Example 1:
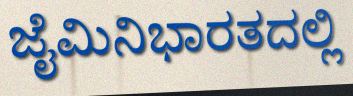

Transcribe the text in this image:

ಜೈಮಿನಿಭಾರತದಲ್ಲಿ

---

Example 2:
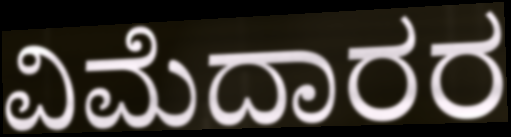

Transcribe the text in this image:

ವಿಮೆದಾರರ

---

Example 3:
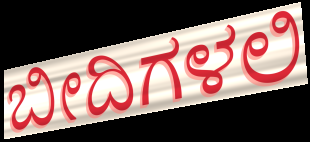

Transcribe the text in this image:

ಬೀದಿಗಳಲಿ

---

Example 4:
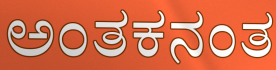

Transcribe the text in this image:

ಅಂತಕನಂತ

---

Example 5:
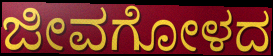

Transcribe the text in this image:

ಜೀವಗೋಳದ